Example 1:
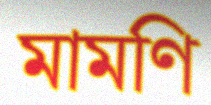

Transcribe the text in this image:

মামণি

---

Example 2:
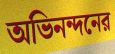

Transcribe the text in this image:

অভিনন্দনের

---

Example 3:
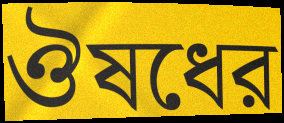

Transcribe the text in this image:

ঔষধের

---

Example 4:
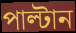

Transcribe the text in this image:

পাল্টান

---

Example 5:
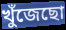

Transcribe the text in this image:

খুঁজেছো